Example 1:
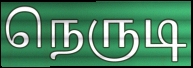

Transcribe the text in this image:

நெருடி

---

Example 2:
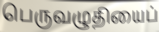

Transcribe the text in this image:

பெருவழுதியைப்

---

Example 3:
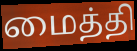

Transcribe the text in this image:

மைத்தி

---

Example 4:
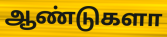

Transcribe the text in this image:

ஆண்டுகளா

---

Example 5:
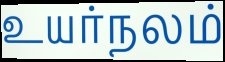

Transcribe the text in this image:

உயர்நலம்